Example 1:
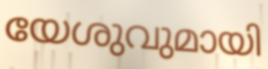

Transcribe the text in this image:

യേശുവുമായി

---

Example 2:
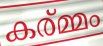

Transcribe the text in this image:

കര്മ്മം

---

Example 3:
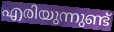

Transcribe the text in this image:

എരിയുന്നുണ്ട്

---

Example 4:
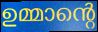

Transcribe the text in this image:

ഉമ്മാന്റെ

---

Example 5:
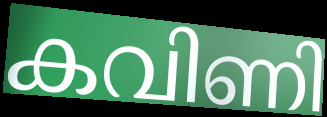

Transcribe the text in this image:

കവിണി